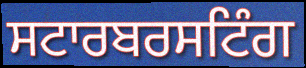
ਸਟਾਰਬਰਸਟਿੰਗ